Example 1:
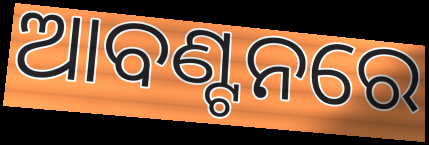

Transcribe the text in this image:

ଆବଣ୍ଟନରେ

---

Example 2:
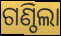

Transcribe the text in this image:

ଗଣ୍ଠିଲା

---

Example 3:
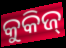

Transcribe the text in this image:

କୁକିଜ୍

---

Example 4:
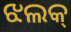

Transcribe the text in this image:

ଝଲକ୍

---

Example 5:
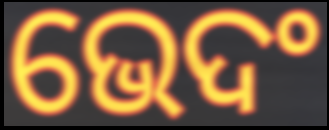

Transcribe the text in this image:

ଭେଦଂ